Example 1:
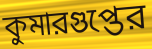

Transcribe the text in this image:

কুমারগুপ্তের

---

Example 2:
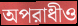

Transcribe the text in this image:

অপরাধীও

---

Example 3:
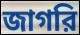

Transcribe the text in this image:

জাগরি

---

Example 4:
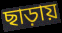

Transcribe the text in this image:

ছাড়ায়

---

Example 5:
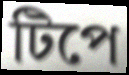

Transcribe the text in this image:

টিপে